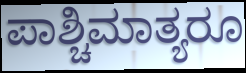
ಪಾಶ್ಚಿಮಾತ್ಯರೂ